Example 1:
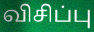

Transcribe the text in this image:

விசிப்பு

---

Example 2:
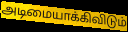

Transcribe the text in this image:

அடிமையாக்கிவிடும்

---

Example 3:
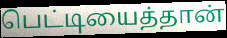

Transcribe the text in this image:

பெட்டியைத்தான்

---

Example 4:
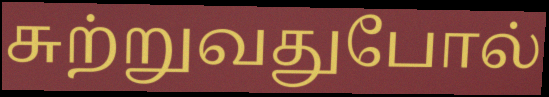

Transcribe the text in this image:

சுற்றுவதுபோல்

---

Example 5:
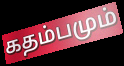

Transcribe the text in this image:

கதம்பமும்